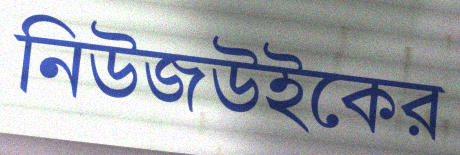
নিউজউইকের